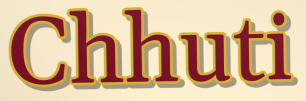
Chhuti